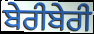
ਬੇਰੀਬੇਰੀ